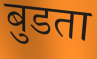
बुडता